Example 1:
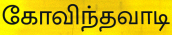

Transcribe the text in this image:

கோவிந்தவாடி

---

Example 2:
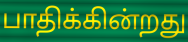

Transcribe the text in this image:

பாதிக்கின்றது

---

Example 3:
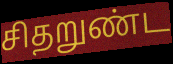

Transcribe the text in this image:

சிதறுண்ட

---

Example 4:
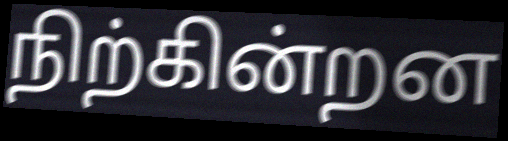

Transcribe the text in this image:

நிற்கின்றன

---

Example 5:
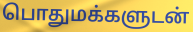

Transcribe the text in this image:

பொதுமக்களுடன்